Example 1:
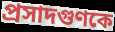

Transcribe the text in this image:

প্রসাদগুণকে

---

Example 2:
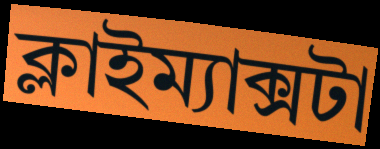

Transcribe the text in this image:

ক্লাইম্যাক্সটা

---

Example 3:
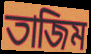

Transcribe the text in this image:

তাজিম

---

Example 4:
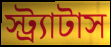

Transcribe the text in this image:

স্ট্র্যাটাস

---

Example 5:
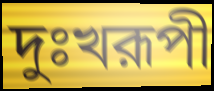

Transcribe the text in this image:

দুঃখরূপী